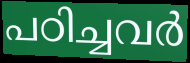
പഠിച്ചവർ